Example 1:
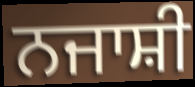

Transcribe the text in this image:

ਨਜਾਸ਼ੀ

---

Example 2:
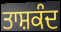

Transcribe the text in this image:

ਤਾਸ਼ਕੰਦ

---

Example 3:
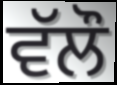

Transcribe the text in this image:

ਵੱਲੌ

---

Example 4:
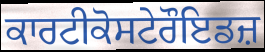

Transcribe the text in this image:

ਕਾਰਟੀਕੋਸਟੇਰੌਇਡਜ਼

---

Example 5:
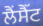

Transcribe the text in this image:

ਲੈਂਸੈੱਟ